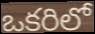
ఒకరిలో